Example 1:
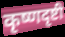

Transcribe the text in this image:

कृष्णदृष्टी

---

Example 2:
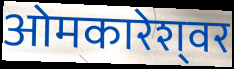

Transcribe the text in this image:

ओमकारेश्वर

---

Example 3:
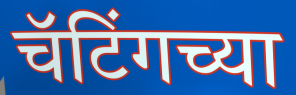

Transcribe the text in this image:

चॅटिंगच्या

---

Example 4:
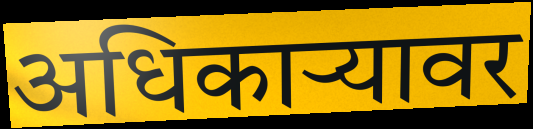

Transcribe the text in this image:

अधिकार्‍यावर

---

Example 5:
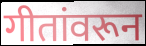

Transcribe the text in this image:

गीतांवरून